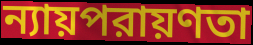
ন্যায়পরায়ণতা